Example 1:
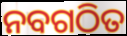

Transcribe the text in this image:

ନବଗଠିତ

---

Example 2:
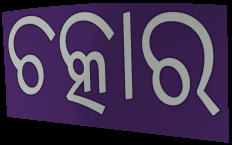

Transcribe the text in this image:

ଚତ୍କାର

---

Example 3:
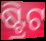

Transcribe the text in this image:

ଷ୍ଟ୍ରିଟ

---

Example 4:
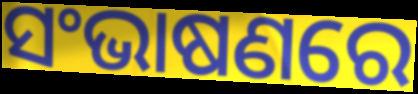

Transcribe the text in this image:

ସଂଭାଷଣରେ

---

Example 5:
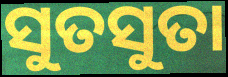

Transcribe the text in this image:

ସୁତସୁତା